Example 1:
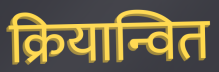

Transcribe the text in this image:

क्रियान्वित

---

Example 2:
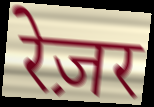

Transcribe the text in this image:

रेज़र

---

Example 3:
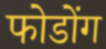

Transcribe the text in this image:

फोडोंग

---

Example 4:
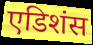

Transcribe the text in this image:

एडिशंस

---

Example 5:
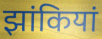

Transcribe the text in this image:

झांकियां